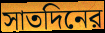
সাতদিনের